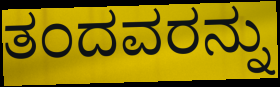
ತಂದವರನ್ನು